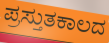
ಪ್ರಸ್ತುತಕಾಲದ